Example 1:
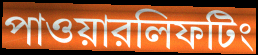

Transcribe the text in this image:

পাওয়ারলিফটিং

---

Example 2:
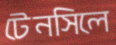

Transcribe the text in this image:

টেনসিলে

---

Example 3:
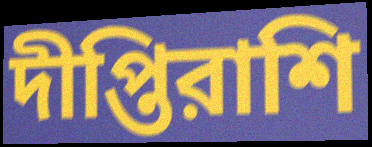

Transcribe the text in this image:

দীপ্তিরাশি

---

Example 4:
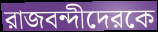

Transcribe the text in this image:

রাজবন্দীদেরকে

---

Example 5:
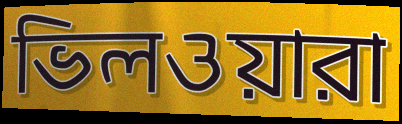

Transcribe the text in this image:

ভিলওয়ারা